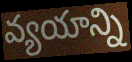
వ్యయాన్ని